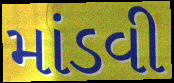
માંડવી